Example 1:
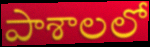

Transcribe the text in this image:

పాశాలలో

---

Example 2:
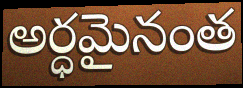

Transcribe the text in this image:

అర్ధమైనంత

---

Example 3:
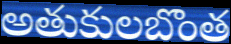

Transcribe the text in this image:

అతుకులబొంత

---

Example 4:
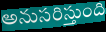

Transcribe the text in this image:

అనుసరిస్తుంది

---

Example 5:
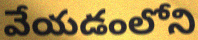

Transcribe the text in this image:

వేయడంలోని